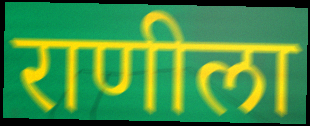
राणीला